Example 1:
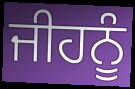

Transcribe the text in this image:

ਜੀਹਨੂੰ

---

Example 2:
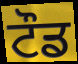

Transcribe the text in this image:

ਟੌਡ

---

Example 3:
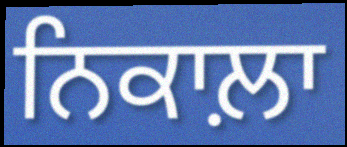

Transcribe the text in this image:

ਨਿਕਾਲ਼ਾ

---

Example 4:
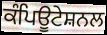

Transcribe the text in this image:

ਕੰਪਿਊਟੇਸ਼ਨਲ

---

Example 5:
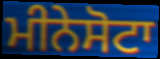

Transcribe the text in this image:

ਮੀਨੇਸੋਟਾ